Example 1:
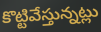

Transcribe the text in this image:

కొట్టివేస్తున్నట్లు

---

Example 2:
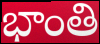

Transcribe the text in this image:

భాంతి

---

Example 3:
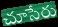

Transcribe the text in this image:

చూసేరు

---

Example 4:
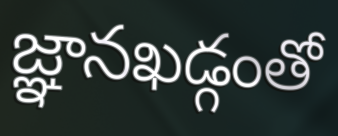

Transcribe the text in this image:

జ్ఞానఖడ్గంతో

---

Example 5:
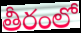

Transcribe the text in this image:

తీరంలో